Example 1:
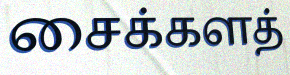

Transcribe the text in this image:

சைக்களத்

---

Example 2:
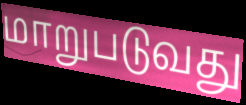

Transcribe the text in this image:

மாறுபடுவது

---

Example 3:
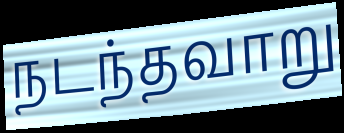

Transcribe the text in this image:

நடந்தவாறு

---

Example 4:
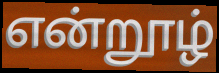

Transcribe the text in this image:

என்றூழ்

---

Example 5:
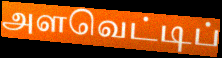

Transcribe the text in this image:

அளவெட்டிப்